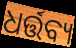
ଧର୍ତ୍ତବ୍ୟ